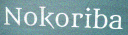
Nokoriba